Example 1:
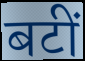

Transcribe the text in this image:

बटीं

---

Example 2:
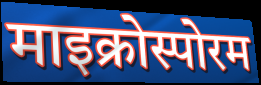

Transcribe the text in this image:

माइक्रोस्पोरम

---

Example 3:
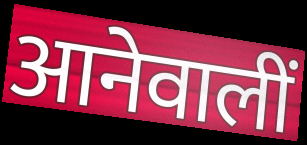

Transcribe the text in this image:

आनेवालीं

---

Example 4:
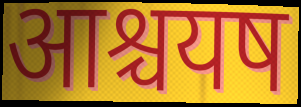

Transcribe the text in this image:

आश्चयष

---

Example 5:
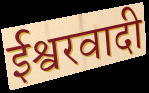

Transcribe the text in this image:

ईश्वरवादी